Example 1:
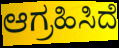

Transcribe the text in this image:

ಆಗ್ರಹಿಸಿದೆ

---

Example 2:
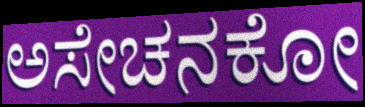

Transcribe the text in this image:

ಅಸೇಚನಕೋ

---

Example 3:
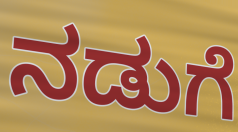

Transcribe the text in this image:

ನಡುಗೆ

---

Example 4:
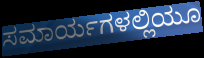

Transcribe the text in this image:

ಸಮಾರ್ಯಗಳಲ್ಲಿಯೂ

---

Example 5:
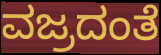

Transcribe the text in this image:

ವಜ್ರದಂತೆ